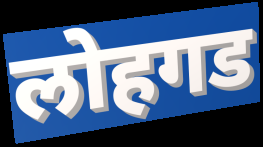
लोहगड